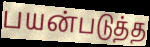
பயன்படுத்த